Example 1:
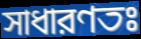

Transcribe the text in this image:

সাধারণতঃ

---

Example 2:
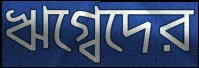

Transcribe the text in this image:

ঋগ্বেদের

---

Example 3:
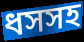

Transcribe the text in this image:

ধসসহ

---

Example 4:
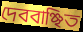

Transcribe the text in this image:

দেববাঞ্ছিত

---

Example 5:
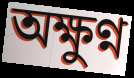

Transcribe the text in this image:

অক্ষুণ্ন